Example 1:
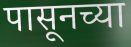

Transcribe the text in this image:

पासूनच्या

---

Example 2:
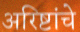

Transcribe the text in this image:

अरिष्टांचे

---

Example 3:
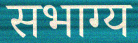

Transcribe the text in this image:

सभाग्य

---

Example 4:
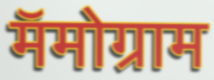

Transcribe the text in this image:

मॅमोग्राम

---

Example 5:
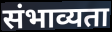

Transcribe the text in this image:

संभाव्यता